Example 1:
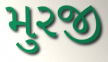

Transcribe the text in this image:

મુરજી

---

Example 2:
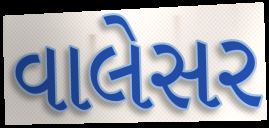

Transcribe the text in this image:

વાલેસર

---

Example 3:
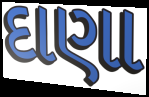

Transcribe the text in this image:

દાણા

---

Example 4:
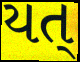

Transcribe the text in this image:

યત્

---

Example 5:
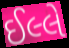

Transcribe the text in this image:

ઈલ્લે